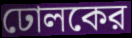
ঢোলকের